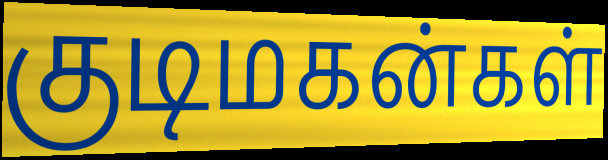
குடிமகன்கள்